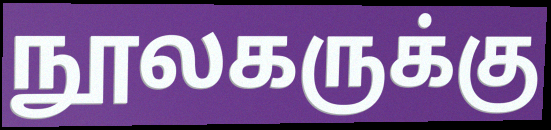
நூலகருக்கு